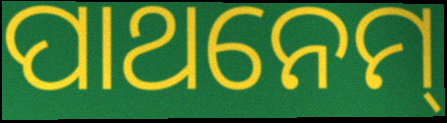
ପାଥନେମ୍